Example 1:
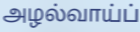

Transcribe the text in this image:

அழல்வாய்ப்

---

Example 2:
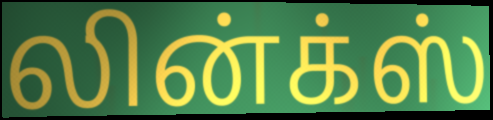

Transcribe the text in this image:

லின்க்ஸ்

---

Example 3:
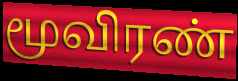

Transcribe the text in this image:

மூவிரண்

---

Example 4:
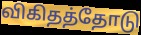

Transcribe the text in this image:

விகிதத்தோடு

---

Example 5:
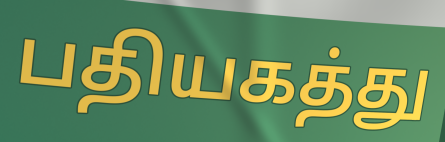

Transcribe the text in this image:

பதியகத்து